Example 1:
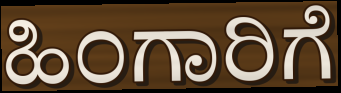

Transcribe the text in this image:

ಹಿಂಗಾರಿಗೆ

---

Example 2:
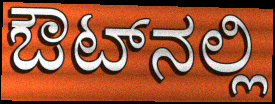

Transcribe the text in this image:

ಔಟ್‌ನಲ್ಲಿ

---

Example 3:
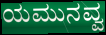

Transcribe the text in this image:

ಯಮುನವ್ವ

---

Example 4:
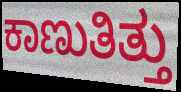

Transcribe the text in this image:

ಕಾಣುತಿತ್ತು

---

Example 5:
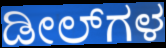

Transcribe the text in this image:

ಡೀಲ್‌ಗಳ